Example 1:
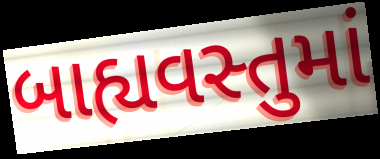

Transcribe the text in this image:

બાહ્યવસ્તુમાં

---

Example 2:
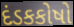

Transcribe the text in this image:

દંડકકોષો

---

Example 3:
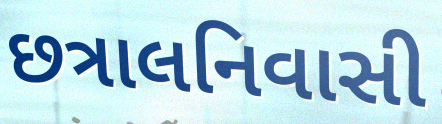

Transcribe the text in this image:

છત્રાલનિવાસી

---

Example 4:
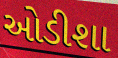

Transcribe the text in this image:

ઓડીશા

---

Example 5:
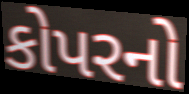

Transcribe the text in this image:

કોપરનો